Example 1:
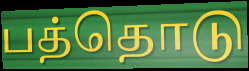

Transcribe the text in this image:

பத்தொடு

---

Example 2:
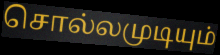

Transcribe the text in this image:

சொல்லமுடியும்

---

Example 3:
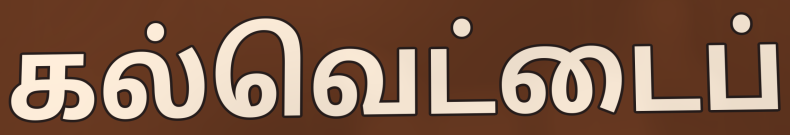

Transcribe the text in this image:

கல்வெட்டைப்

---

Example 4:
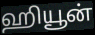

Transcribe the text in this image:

ஹியூன்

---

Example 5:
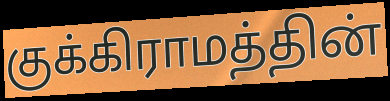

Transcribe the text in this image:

குக்கிராமத்தின்